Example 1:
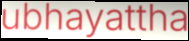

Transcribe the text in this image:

ubhayattha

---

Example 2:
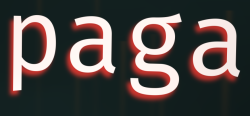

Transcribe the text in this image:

paga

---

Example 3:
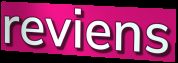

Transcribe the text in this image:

reviens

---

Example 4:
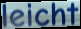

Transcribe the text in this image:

leicht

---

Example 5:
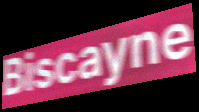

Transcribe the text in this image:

Biscayne